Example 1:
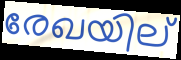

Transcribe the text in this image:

രേഖയില്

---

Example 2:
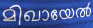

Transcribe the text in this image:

മിഖായേൽ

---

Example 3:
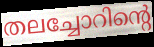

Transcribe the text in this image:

തലച്ചോറിന്റെ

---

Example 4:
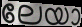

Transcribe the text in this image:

ലേയാ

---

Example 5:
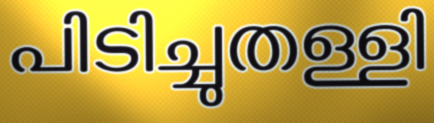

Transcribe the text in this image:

പിടിച്ചുതള്ളി